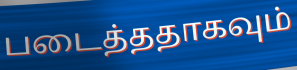
படைத்ததாகவும்